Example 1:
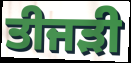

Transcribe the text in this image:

ਤੀਜੜੀ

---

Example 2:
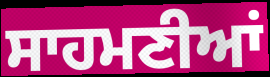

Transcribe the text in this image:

ਸਾਹਮਣੀਆਂ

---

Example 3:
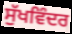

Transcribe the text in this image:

ਸੁੱਖਵਿੰਦਰ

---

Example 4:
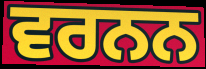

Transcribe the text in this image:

ਵਰਨਨ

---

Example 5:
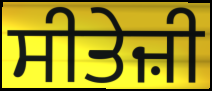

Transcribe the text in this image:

ਸੀਤੇਜ਼ੀ